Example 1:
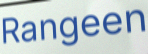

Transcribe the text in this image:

Rangeen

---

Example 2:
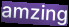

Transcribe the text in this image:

amzing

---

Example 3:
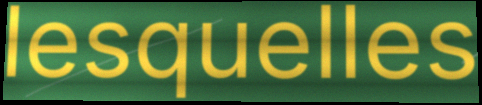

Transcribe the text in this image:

lesquelles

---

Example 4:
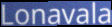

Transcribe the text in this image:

Lonavala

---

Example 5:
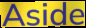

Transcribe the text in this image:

Aside